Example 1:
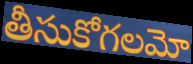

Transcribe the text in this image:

తీసుకోగలమో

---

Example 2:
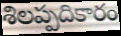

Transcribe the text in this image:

శిలప్పదికారం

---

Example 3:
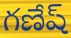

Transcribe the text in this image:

గణేష్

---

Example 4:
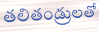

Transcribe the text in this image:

తలితండ్రులతో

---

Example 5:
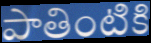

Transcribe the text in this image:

పాతింటికి